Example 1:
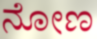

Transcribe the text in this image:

ನೋಣ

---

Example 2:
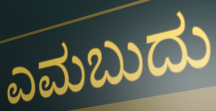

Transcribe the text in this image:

ಎಮಬುದು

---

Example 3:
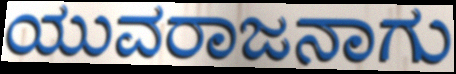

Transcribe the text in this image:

ಯುವರಾಜನಾಗು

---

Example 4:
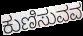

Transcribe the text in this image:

ಕುಣಿಸುವವ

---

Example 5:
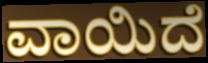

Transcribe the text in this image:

ವಾಯಿದೆ